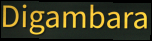
Digambara